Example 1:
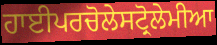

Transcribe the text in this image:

ਹਾਈਪਰਚੋਲੇਸਟ੍ਰੋਲੇਮੀਆ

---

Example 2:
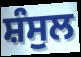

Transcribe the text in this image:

ਸ਼ੰਸੁਲ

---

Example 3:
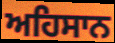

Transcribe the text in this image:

ਅਹਿਸਾਨ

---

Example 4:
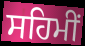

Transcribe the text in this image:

ਸਹਿਮੀਂ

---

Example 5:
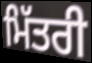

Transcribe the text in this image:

ਮਿੱਤਰੀ